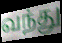
வந்து